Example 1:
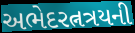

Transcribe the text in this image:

અભેદરત્નત્રયની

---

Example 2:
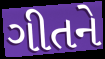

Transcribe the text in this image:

ગીતને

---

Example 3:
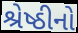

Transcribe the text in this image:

શ્રેષ્ઠીનો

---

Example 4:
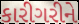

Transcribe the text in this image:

કારીગરીને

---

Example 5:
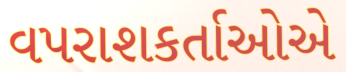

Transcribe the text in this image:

વપરાશકર્તાઓએ